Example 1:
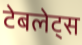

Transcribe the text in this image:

टेबलेट्स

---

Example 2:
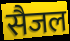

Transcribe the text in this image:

सैजल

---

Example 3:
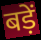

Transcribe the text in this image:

बड़ें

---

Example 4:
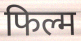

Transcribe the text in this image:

फिल्म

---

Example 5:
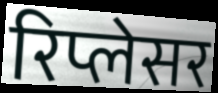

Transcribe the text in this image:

रिप्लेसर